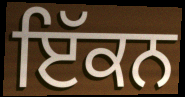
ਇੱਕਨ